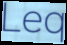
Leq